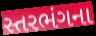
સ્તરભંગના